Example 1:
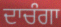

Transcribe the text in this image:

ਦਾਚੰਗਾ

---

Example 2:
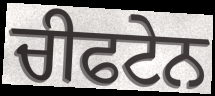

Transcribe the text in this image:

ਚੀਫਟੇਨ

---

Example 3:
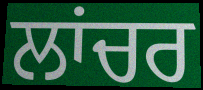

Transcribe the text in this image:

ਲਾਂਚਰ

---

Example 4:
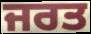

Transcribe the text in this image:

ਜਰਤ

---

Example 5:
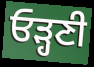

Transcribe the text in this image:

ਓੜ੍ਹਣੀ